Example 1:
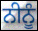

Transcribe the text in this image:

ਨੀਨੂੰ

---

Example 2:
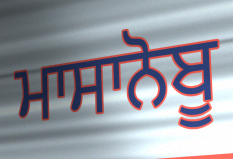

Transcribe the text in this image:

ਮਾਸਾਨੋਬੂ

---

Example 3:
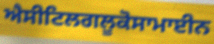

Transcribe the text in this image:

ਐਸੀਟਿਲਗਲੂਕੋਸਾਮਾਈਨ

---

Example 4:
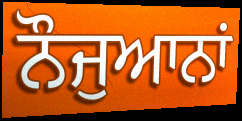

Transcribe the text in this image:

ਨੌਜੁਆਨਾਂ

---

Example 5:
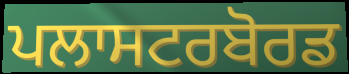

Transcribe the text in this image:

ਪਲਾਸਟਰਬੋਰਡ